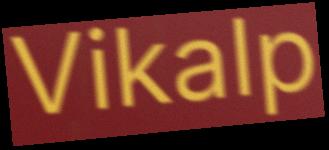
Vikalp